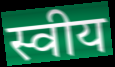
स्वीय